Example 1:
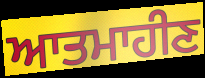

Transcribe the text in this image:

ਆਤਮਾਹੀਣ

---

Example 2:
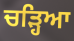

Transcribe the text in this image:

ਚਡ਼੍ਹਿਆ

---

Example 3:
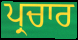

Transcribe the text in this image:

ਪ੍ਰਚਾਰ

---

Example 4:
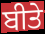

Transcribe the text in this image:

ਬੀਤੇ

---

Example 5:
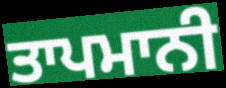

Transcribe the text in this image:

ਤਾਪਮਾਨੀ